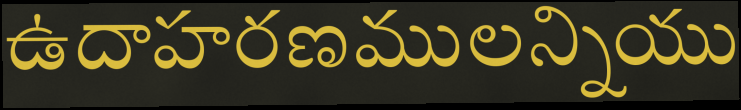
ఉదాహరణములన్నియు